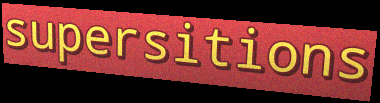
supersitions